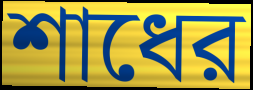
শাধের